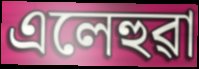
এলেহুৱা